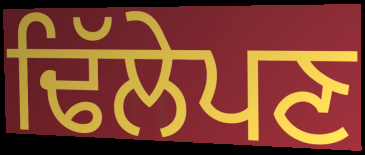
ਢਿੱਲੇਪਣ